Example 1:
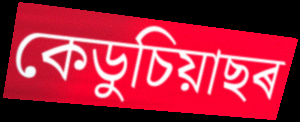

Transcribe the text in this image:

কেডুচিয়াছৰ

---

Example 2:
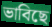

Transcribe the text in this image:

ভাবিছে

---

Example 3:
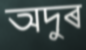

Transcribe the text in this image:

অদুৰ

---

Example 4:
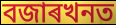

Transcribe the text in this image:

বজাৰখনত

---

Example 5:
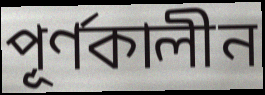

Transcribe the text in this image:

পূৰ্ণকালীন